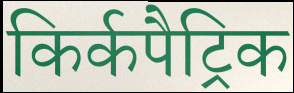
किर्कपैट्रिक